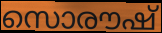
സൊരൗഷ്